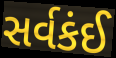
સર્વકંઈ